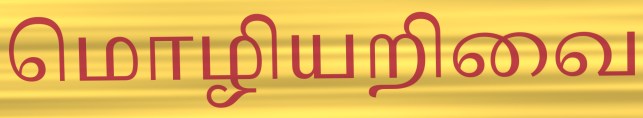
மொழியறிவை